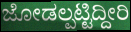
ಜೋಡಲ್ಪಟ್ಟಿದ್ದೀರಿ